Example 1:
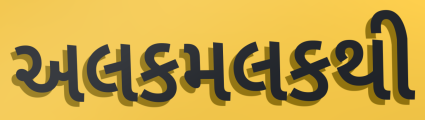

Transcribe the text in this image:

અલકમલકથી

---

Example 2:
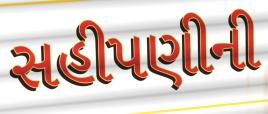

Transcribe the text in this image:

સહીપણીની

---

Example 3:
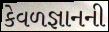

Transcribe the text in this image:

કેવળજ્ઞાનની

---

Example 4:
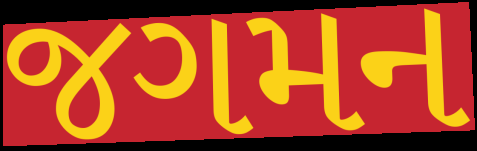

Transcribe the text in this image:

જગમન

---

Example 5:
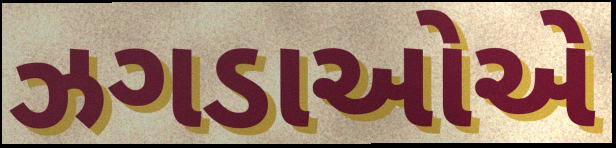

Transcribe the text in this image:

ઝગડાઓએ